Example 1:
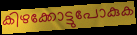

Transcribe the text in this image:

കിഴക്കോട്ടുപോകുക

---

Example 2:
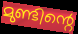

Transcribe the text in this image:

മുണ്ടിന്റെ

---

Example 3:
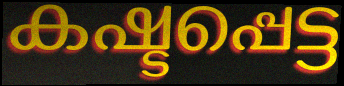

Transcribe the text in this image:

കഷ്ടപ്പെട്ട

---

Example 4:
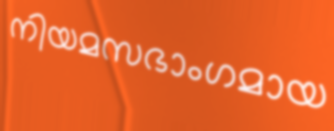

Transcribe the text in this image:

നിയമസഭാംഗമായ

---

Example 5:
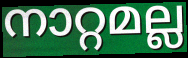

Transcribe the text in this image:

നാറ്റമല്ല